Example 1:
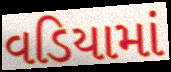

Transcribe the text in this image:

વડિયામાં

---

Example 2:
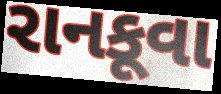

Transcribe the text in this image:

રાનકૂવા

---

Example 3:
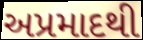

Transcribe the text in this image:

અપ્રમાદથી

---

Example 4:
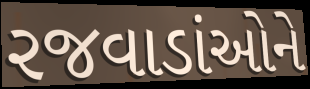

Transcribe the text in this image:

રજવાડાંઓને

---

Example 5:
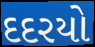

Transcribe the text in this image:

દદરયો